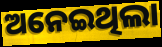
ଅନେଇଥିଲା